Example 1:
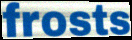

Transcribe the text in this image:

frosts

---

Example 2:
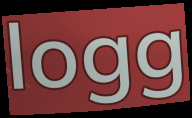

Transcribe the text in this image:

logg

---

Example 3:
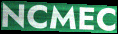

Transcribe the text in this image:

NCMEC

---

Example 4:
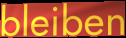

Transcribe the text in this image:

bleiben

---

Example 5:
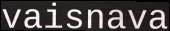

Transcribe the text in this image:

vaisnava